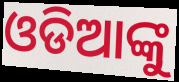
ଓଡିଆଙ୍କୁ